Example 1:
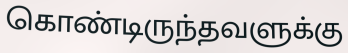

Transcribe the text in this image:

கொண்டிருந்தவளுக்கு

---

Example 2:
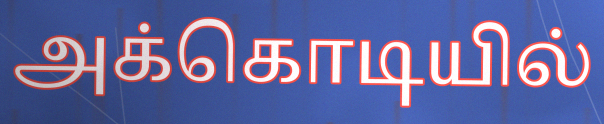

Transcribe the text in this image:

அக்கொடியில்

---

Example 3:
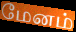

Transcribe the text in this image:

மேனம்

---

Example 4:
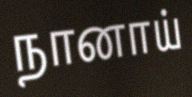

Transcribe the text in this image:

நானாய்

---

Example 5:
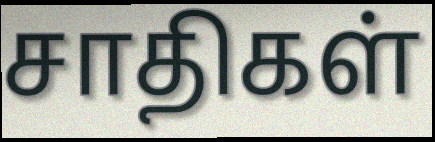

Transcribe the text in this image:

சாதிகள்